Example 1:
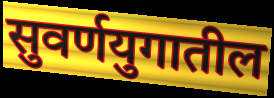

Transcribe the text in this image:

सुवर्णयुगातील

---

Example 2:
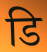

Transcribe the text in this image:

डि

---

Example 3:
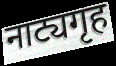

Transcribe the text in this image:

नाट्यगृह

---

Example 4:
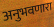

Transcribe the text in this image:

अनुभवणारा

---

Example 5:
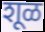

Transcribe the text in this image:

शूळ